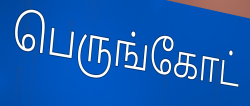
பெருங்கோட்